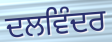
ਦਲਵਿੰਦਰ